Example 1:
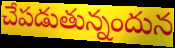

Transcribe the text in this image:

చేపడుతున్నందున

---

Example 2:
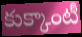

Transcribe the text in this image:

కుక్కాంటీ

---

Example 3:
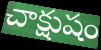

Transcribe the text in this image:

చాక్షుషం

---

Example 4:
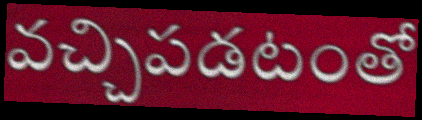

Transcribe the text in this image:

వచ్చిపడటంతో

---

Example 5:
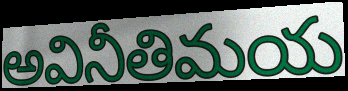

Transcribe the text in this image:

అవినీతిమయ